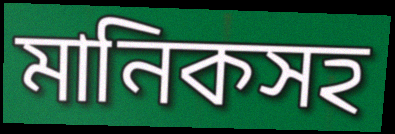
মানিকসহ